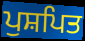
ਪੁਸ਼ਪਿਤ